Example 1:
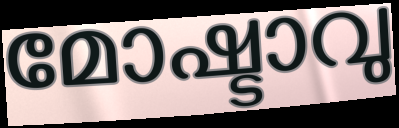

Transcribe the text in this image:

മോഷ്ടാവു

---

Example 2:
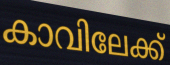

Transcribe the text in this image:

കാവിലേക്ക്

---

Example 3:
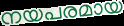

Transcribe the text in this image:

നയപരമായ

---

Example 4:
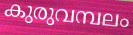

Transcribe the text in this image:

കുരുവമ്പലം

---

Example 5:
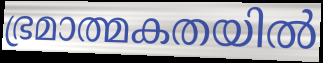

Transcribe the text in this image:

ഭ്രമാത്മകതയിൽ